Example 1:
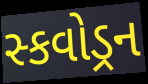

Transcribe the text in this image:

સ્કવોડ્રન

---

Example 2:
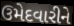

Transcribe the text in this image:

ઉમેદવારીને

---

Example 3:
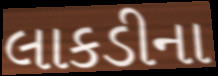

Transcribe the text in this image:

લાકડીના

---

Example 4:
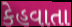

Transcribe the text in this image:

કેહવાતા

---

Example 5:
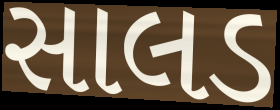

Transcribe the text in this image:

સાલડ